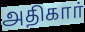
அதிகார்